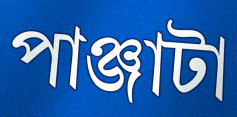
পাঞ্জাটা